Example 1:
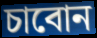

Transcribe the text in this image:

চাবোন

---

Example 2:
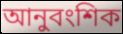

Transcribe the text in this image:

আনুবংশিক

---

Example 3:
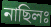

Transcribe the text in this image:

নাছিলঃ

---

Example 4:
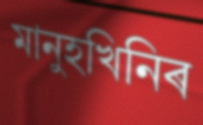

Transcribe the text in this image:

মানুহখিনিৰ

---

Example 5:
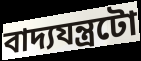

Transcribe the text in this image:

বাদ্যযন্ত্ৰটো